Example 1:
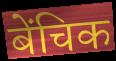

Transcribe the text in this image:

बेंचिक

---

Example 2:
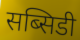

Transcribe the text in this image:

सब्सिडी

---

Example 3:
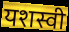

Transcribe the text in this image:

यशस्‍वी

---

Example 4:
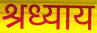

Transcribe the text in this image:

श्रध्याय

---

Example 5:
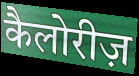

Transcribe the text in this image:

कैलोरीज़